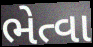
ભેત્વા